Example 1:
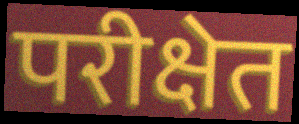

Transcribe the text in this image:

परीक्षेत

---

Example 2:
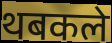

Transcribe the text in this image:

थबकले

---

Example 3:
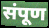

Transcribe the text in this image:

संपूण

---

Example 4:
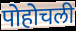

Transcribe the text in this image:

पोहोचली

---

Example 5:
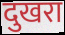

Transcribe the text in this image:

दुखरा